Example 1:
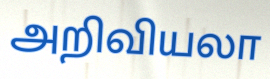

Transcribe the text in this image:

அறிவியலா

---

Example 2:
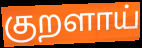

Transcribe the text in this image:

குறளாய்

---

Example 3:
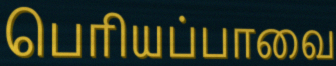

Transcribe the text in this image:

பெரியப்பாவை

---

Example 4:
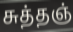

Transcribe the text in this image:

சுத்தஞ்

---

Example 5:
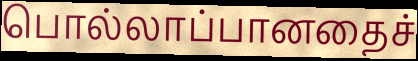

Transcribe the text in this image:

பொல்லாப்பானதைச்